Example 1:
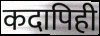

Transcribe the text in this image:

कदापिही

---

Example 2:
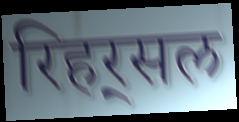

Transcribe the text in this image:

रिहर्सल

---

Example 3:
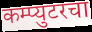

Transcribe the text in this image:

कम्प्युटरचा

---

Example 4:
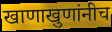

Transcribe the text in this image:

खाणाखुणांनीच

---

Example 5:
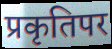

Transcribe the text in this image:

प्रकृतिपर